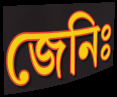
জেনিঃ